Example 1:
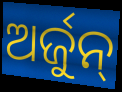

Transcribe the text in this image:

ଅର୍ଜୁନ୍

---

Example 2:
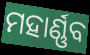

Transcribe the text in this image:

ମହାର୍ଣ୍ଣବ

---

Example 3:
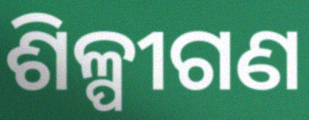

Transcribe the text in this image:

ଶିଳ୍ପୀଗଣ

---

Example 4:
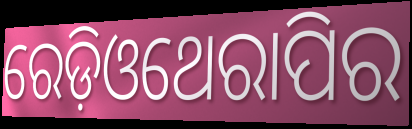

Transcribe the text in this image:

ରେଡ଼ିଓଥେରାପିର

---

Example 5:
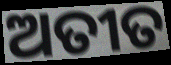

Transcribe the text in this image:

ଅତୀତ